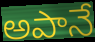
అపానే